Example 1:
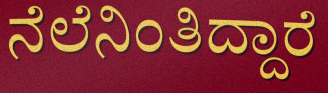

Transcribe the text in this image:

ನೆಲೆನಿಂತಿದ್ದಾರೆ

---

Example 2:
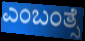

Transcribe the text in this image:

ಎಂಬಂತ್ಸೆ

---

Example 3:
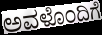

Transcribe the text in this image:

ಅವಳೊಂದಿಗೆ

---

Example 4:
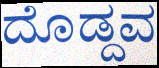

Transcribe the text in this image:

ದೊಡ್ದವ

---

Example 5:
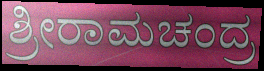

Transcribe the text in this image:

ಶ್ರೀರಾಮಚಂದ್ರ